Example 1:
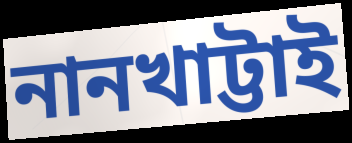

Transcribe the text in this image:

নানখাট্টাই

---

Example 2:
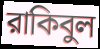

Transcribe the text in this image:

রাকিবুল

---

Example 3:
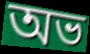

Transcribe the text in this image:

অভ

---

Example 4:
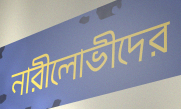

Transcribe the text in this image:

নারীলোভীদের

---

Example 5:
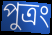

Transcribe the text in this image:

পুত্রং